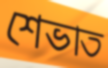
শেভাত